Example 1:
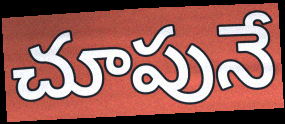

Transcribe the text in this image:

చూపునే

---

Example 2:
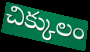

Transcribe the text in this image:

చిక్కులం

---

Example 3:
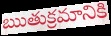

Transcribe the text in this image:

ఋతుక్రమానికి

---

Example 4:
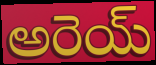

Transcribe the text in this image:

అరెయ్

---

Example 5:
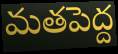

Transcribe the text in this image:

మతపెద్ద